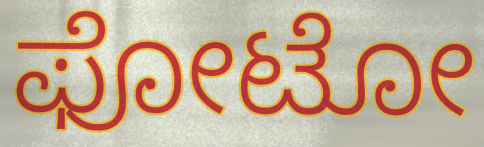
ಫೋಟೋ